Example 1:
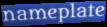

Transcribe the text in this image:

nameplate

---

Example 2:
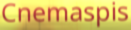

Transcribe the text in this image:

Cnemaspis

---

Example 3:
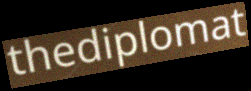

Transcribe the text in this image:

thediplomat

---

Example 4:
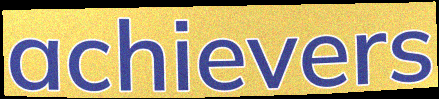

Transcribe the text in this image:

achievers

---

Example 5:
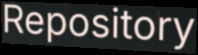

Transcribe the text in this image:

Repository